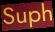
Suph